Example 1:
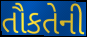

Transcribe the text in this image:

તૌકતેની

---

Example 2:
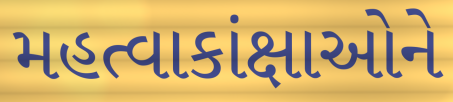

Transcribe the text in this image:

મહત્વાકાંક્ષાઓને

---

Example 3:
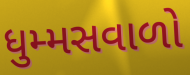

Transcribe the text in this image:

ધુમ્મસવાળો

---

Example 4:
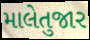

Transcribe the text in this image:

માલેતુજાર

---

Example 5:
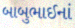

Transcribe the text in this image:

બાબુભાઈનાં